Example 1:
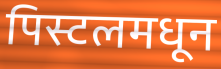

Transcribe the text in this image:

पिस्टलमधून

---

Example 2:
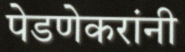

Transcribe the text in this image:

पेडणेकरांनी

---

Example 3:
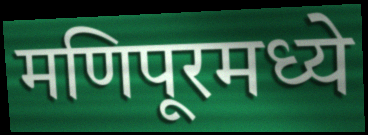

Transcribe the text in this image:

मणिपूरमध्ये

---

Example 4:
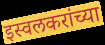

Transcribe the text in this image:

इस्वलकरांच्या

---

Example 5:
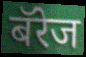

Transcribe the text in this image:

बॅरेज